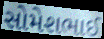
સોમેશભાઈ